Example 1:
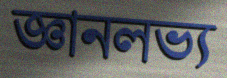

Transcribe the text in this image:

জ্ঞানলভ্য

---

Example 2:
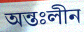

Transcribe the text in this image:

অন্তঃলীন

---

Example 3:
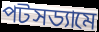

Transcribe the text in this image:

পটসড্যামে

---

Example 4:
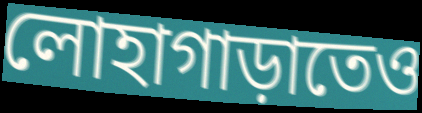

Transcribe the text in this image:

লোহাগাড়াতেও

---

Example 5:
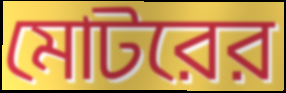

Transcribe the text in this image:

মোটরের